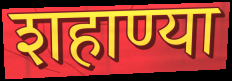
शहाण्या